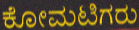
ಕೋಮಟಿಗರು